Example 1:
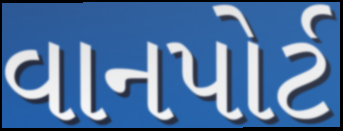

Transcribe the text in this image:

વાનપોર્ટ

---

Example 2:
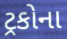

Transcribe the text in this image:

ટ્રકોના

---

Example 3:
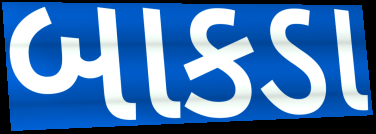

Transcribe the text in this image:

બાકડા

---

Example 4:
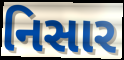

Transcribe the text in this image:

નિસાર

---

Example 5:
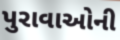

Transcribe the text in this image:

પુરાવાઓની